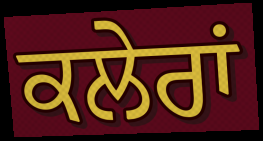
ਕਲੇਰਾਂ